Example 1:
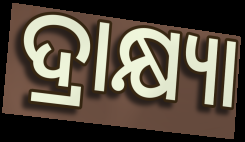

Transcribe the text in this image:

ଦ୍ରାକ୍ଷ୍ୟା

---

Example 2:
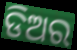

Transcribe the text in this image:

ଡିଅର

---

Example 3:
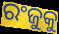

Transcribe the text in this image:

ରଂଜୁକୁ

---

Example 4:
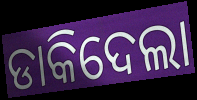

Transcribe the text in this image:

ଡାକିଦେଲା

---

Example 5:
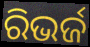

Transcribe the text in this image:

ରିଭର୍ଜ